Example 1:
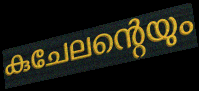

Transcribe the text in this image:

കുചേലന്റെയും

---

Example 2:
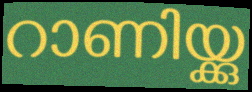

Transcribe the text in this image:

റാണിയ്ക്കു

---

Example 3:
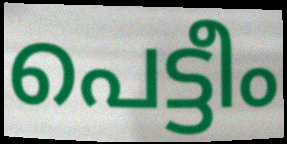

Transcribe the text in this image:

പെട്ടീം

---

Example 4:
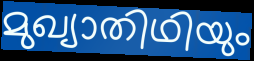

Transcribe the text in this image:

മുഖ്യാതിഥിയും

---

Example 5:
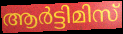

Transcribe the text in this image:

ആർട്ടിമിസ്